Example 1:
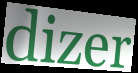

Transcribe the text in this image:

dizer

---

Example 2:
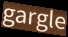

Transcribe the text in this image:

gargle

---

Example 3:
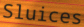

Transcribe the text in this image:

Sluices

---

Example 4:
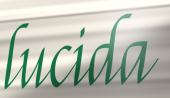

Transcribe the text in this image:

lucida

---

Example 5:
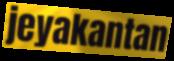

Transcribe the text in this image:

jeyakantan